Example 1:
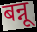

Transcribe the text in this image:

बन्नू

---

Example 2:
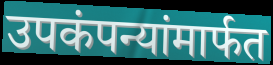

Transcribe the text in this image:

उपकंपन्यांमार्फत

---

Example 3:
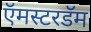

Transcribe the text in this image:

ऍमस्टरडॅम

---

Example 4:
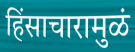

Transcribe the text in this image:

हिंसाचारामुळं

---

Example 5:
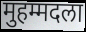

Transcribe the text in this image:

मुहम्मदला